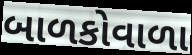
બાળકોવાળા